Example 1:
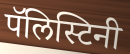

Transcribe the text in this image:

पॅलिस्टिनी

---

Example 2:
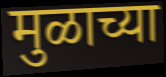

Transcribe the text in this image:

मुळाच्या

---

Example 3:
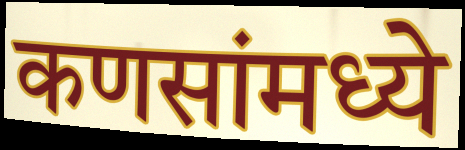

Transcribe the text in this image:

कणसांमध्ये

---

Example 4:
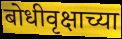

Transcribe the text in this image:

बोधीवृक्षाच्या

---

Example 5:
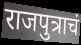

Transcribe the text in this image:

राजपुत्राचं